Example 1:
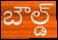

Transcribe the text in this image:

బౌల్డ్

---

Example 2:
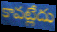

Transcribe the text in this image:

కావట్లేదు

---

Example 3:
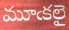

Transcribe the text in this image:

మూఁకలై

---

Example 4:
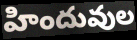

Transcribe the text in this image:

హిందువుల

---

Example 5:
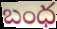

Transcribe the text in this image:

బంధ